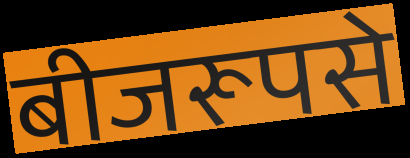
बीजरूपसे